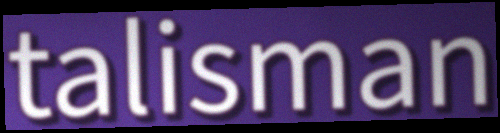
talisman